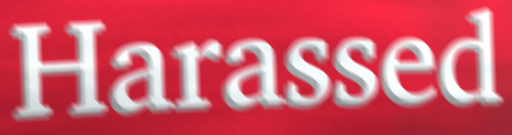
Harassed